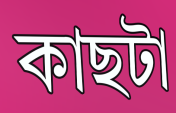
কাছটা